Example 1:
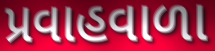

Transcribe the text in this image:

પ્રવાહવાળા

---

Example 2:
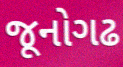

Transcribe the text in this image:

જૂનોગઢ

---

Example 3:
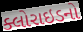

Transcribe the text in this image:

ક્લોરાઇડનો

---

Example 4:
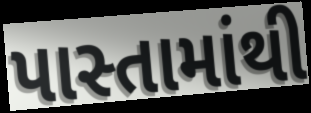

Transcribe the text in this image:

પાસ્તામાંથી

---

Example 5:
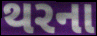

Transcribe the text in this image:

થરના